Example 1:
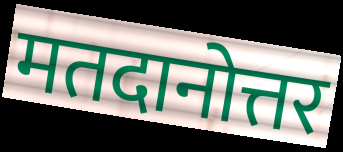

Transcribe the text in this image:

मतदानोत्तर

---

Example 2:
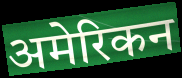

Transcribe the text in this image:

अमेरिकन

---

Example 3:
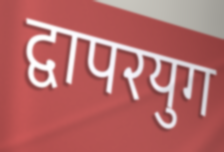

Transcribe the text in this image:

द्वापरयुग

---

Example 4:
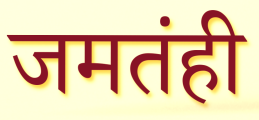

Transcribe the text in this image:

जमतंही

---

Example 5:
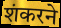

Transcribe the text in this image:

शंकरने